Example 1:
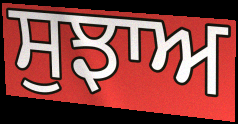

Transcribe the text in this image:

ਸੁਝਾਅ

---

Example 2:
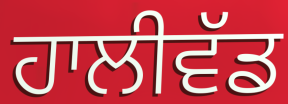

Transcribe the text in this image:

ਹਾਲੀਵੱਡ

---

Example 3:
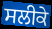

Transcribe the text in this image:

ਸਲੀਕੇ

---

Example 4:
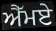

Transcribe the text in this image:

ਐੱਮਏ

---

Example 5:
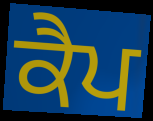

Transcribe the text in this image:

ਕੈਪ